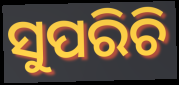
ସୁପରିଚି